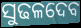
ସୁଢଳଦେବ